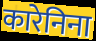
कारेनिना